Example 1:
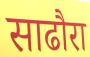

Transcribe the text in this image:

साढौरा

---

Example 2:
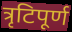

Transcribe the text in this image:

त्रृटिपूर्ण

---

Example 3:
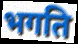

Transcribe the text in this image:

भगति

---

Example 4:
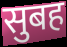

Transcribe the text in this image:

सुबह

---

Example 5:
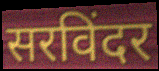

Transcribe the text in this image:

सरविंदर